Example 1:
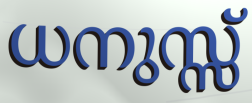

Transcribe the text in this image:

ധനുസ്സ്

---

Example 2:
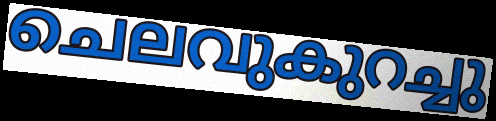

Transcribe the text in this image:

ചെലവുകുറച്ചു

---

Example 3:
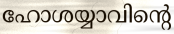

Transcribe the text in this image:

ഹോശയ്യാവിന്റെ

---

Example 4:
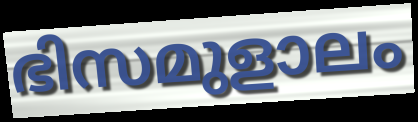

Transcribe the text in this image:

ഭിസമുളാലം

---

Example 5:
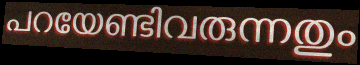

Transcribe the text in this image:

പറയേണ്ടിവരുന്നതും